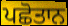
ਪਛੋਤਾਨ